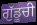
ਗੁੱਡੂਚੀ